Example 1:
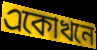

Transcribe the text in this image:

একোখনে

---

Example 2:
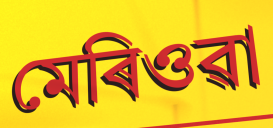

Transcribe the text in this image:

মেৰিওৱা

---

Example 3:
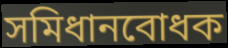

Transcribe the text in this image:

সমিধানবোধক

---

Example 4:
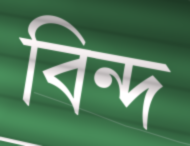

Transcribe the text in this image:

বিন্দ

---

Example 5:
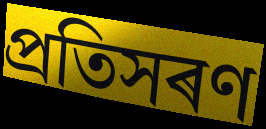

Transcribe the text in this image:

প্ৰতিসৰণ